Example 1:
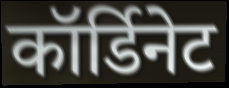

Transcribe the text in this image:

कॉर्डिनेट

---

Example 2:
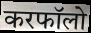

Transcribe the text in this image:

करफॉलो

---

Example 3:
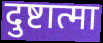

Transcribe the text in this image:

दुष्टात्मा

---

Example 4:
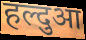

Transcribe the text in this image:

हल्दुआ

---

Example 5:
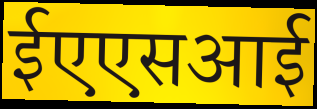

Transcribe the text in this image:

ईएएसआई